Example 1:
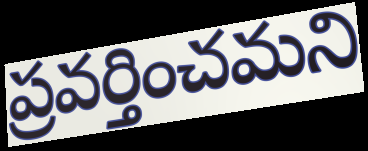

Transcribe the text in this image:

ప్రవర్తించమని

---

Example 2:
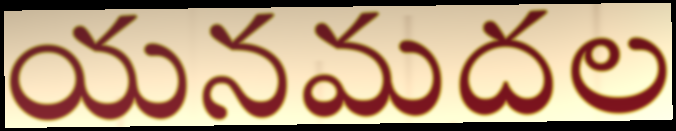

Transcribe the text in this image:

యనమదల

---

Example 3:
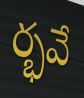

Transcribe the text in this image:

ర్భవే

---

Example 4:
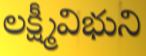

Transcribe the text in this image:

లక్ష్మీవిభుని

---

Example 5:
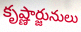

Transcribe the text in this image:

కృష్ణార్జునులు